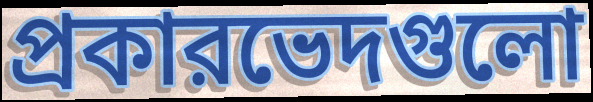
প্রকারভেদগুলো